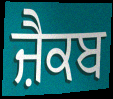
ਜ਼ੈਕਬ